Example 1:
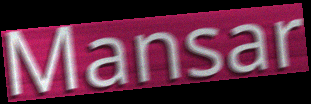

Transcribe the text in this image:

Mansar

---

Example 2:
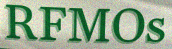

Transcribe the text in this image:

RFMOs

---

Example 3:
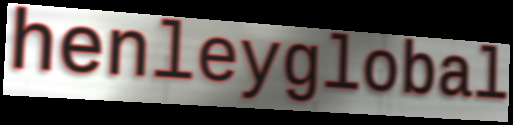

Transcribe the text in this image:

henleyglobal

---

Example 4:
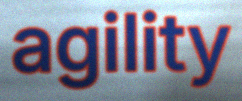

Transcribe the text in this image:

agility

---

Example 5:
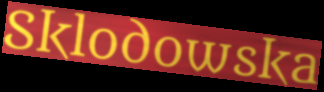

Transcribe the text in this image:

Sklodowska